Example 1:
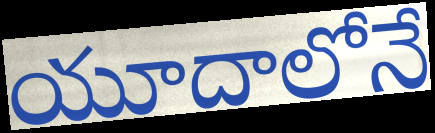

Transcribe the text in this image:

యూదాలోనే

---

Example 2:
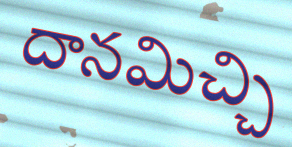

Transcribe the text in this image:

దానమిచ్చి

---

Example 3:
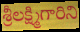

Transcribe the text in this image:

శ్రీలక్ష్మిగారిని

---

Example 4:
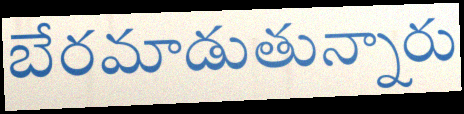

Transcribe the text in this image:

బేరమాడుతున్నారు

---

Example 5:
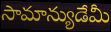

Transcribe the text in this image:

సామాన్యుడేమీ